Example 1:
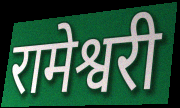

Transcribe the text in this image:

रामेश्वरी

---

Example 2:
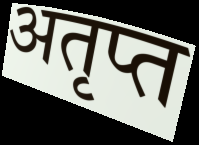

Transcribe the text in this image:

अतृप्त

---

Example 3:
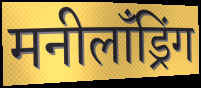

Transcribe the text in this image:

मनीलॉंड्रिंग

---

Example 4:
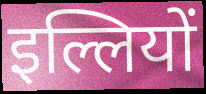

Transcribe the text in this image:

इल्लियों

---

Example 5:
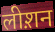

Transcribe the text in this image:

लीश़न